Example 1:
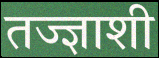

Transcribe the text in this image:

तज्ज्ञाशी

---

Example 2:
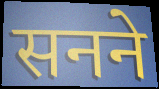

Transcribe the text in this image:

सनने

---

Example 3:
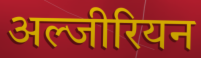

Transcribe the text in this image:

अल्जीरियन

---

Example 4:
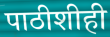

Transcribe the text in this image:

पाठीशीही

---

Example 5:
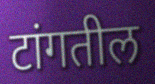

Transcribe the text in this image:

टांगतील